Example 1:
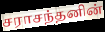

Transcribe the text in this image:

சராசந்தனின்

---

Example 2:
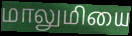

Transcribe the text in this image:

மாலுமியை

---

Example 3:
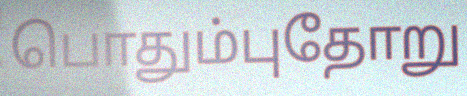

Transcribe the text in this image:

பொதும்புதோறு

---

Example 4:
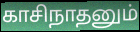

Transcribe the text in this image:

காசிநாதனும்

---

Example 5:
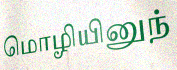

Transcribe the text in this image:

மொழியினுந்